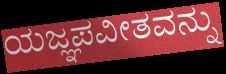
ಯಜ್ಞಪವೀತವನ್ನು